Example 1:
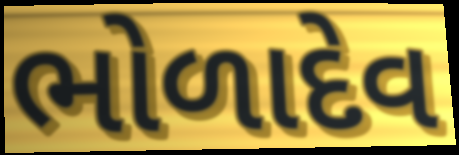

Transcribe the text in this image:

ભોળાદેવ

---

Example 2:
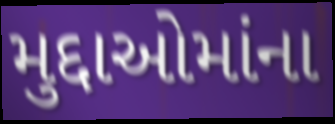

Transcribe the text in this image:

મુદ્દાઓમાંના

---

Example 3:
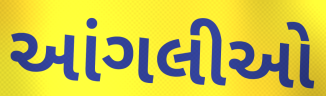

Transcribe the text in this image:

આંગલીઓ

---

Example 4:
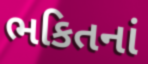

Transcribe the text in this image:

ભકિતનાં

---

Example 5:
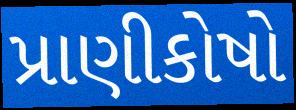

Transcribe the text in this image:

પ્રાણીકોષો